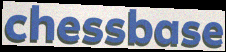
chessbase